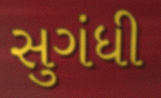
સુગંધી